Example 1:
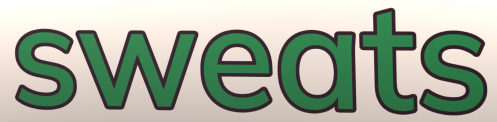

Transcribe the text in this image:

sweats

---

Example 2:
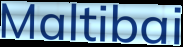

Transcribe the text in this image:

Maltibai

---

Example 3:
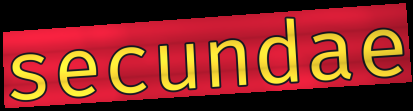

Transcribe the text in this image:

secundae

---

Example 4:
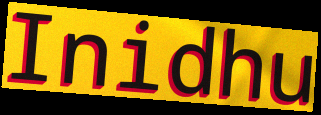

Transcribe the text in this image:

Inidhu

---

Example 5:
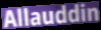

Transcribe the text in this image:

Allauddin